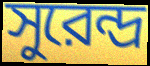
সুরেন্দ্র